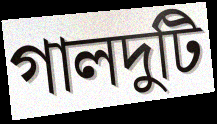
গালদুটি